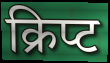
क्रिप्ट